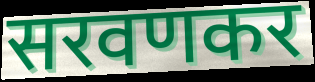
सरवणकर